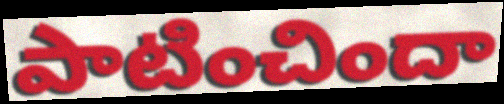
పాటించిందా